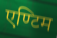
एण्टिम